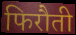
फिरौती